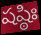
షష్ఠిః